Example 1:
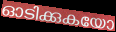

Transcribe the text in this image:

ഓടിക്കുകയോ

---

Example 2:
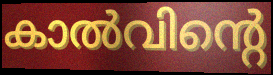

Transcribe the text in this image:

കാൽവിന്റെ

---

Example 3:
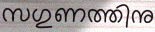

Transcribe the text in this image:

സഗുണത്തിനു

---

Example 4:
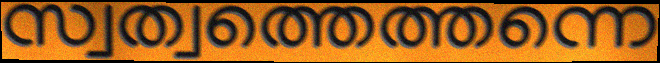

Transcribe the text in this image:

സ്വത്വത്തെത്തന്നെ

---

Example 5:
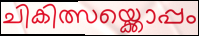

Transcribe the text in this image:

ചികിത്സയ്ക്കൊപ്പം